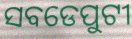
ସବଡେପୁଟୀ